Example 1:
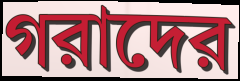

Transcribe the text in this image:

গরাদের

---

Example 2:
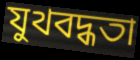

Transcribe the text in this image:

যুথবদ্ধতা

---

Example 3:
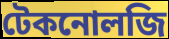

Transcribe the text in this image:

টেকনোলজি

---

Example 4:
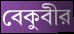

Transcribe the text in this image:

বেকুবীর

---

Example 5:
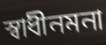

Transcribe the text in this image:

স্বাধীনমনা